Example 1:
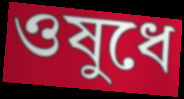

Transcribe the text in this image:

ওষুধে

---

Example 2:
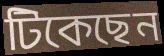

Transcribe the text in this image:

টিকেছেন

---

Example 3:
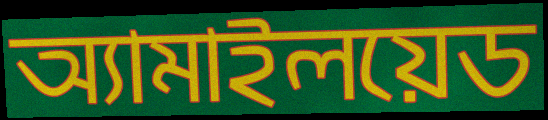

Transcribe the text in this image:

অ্যামাইলয়েড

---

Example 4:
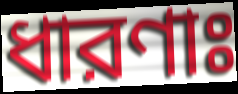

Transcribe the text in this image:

ধারণাঃ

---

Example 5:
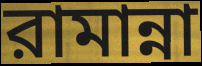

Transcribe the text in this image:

রামান্না